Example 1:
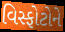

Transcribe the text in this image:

વિસ્ફોટોને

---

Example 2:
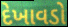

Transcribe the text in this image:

દેખાવડો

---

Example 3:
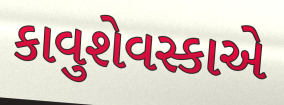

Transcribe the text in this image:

કાવુશેવસ્કાએ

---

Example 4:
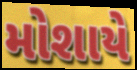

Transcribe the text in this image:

મોશાયે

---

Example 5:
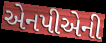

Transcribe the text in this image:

એનપીએની